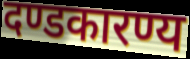
दण्डकारण्य